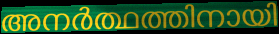
അനർത്ഥത്തിനായി